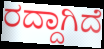
ರದ್ದಾಗಿದೆ